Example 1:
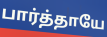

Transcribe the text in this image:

பார்த்தாயே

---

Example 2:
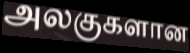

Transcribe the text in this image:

அலகுகளான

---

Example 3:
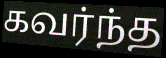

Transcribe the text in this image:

கவர்ந்த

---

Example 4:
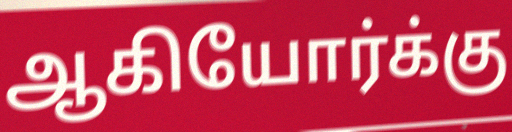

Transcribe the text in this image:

ஆகியோர்க்கு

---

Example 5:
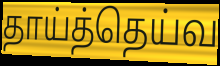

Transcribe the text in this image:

தாய்த்தெய்வ